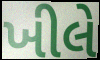
ખીલે